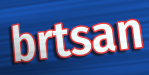
brtsan